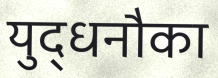
युद्धनौका